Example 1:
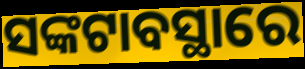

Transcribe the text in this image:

ସଙ୍କଟାବସ୍ଥାରେ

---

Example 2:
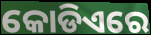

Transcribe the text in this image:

କୋଡିଏରେ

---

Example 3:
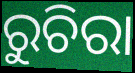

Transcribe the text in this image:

ରୁଚିରା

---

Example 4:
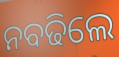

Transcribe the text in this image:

ନବଢିଲେ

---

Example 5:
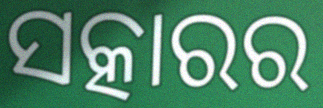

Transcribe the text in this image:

ସତ୍କାରର